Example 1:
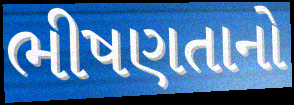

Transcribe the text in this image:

ભીષણતાનો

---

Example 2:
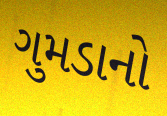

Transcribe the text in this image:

ગુમડાનો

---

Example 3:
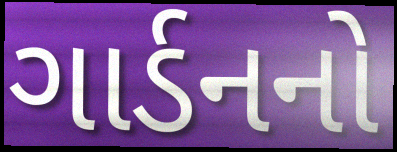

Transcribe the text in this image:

ગાર્ડનનો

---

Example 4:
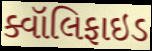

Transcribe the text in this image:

ક્વૉલિફાઇડ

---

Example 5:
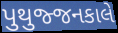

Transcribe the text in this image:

પુથુજ્જનકાલે